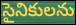
సైనికులను